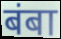
बंबा